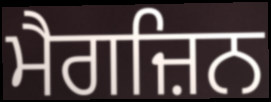
ਮੈਗਜ਼ਿਨ